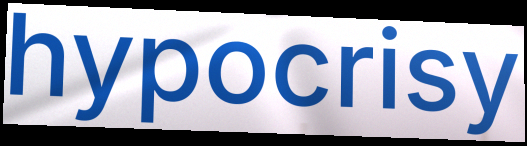
hypocrisy